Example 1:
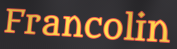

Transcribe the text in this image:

Francolin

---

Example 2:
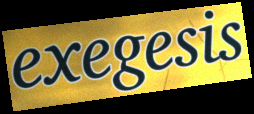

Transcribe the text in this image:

exegesis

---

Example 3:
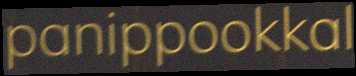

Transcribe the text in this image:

panippookkal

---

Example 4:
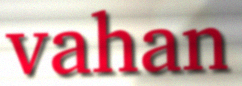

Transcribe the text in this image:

vahan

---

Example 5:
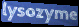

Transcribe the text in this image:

lysozyme